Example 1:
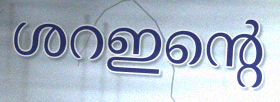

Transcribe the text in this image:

ശറഇന്റെ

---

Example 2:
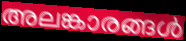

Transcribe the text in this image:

അലങ്കാരങ്ങൾ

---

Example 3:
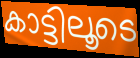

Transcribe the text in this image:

കാട്ടിലൂടെ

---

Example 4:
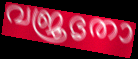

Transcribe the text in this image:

വജ്രഭൃതാ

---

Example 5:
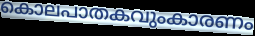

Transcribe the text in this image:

കൊലപാതകവുംകാരണം